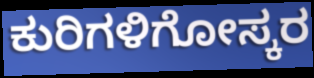
ಕುರಿಗಳಿಗೋಸ್ಕರ